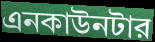
এনকাউনটার